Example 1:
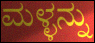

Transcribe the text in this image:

ಮಳ್ಳನ್ನು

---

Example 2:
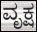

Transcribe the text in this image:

ವೃಕ್ಷ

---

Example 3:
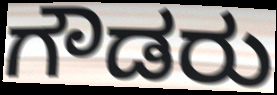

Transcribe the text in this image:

ಗೌಡರು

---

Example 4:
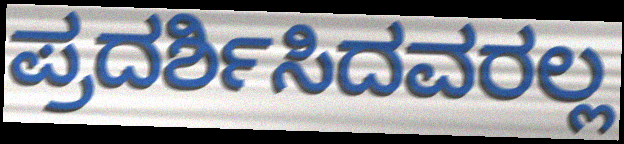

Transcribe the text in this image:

ಪ್ರದರ್ಶಿಸಿದವರಲ್ಲ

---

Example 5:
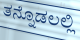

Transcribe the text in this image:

ತನ್ನೊಡಲಲ್ಲಿ